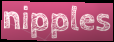
nipples